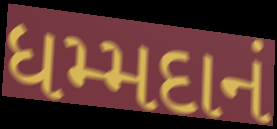
ધમ્મદાનં